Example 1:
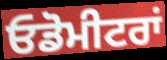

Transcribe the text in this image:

ਓਡੋਮੀਟਰਾਂ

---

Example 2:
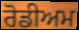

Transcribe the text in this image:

ਰੋਡੀਅਮ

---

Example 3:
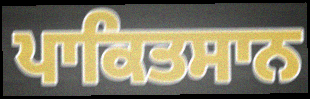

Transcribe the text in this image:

ਪਾਕਿਤਸਾਨ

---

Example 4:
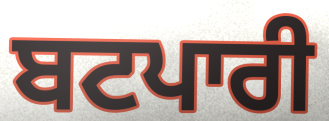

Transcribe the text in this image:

ਬਟਪਾਰੀ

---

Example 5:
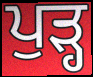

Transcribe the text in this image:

ਪੁੜ੍ਹ